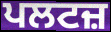
ਪਲਟਜ਼